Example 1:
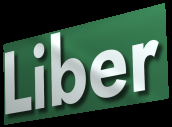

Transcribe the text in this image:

Liber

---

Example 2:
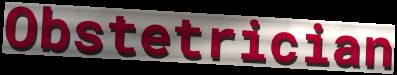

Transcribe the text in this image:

Obstetrician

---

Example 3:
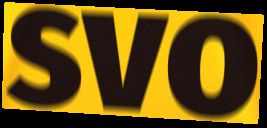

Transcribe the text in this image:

svo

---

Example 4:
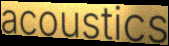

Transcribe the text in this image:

acoustics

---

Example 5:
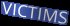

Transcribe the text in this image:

VICTIMS